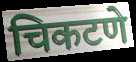
चिकटणे